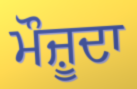
ਮੌਜ਼ੂਦਾ